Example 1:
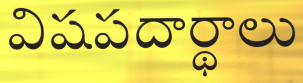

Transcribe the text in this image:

విషపదార్థాలు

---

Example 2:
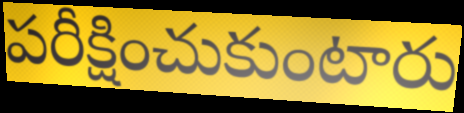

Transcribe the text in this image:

పరీక్షించుకుంటారు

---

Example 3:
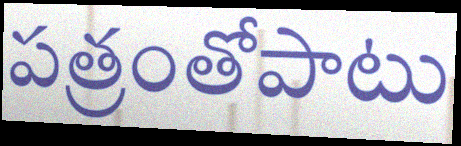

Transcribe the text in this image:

పత్రంతోపాటు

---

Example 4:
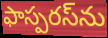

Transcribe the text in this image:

ఫాస్పరస్‌ను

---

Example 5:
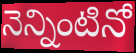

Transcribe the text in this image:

నెన్నింటినో